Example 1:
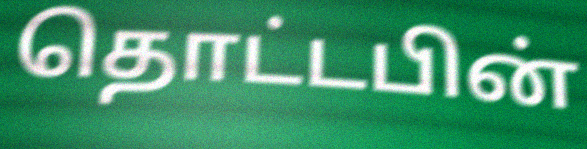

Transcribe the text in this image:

தொட்டபின்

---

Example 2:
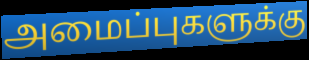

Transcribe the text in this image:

அமைப்புகளுக்கு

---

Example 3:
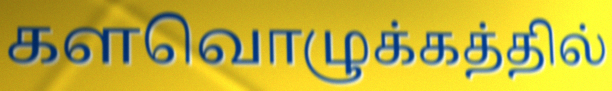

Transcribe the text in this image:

களவொழுக்கத்தில்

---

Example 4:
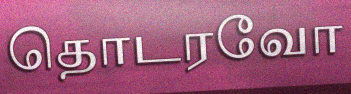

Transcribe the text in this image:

தொடரவோ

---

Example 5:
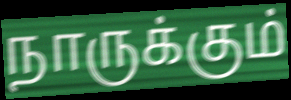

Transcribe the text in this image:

நாருக்கும்